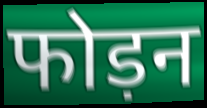
फोड़न